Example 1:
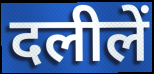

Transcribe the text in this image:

दलीलें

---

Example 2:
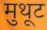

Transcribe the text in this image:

मुथूट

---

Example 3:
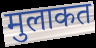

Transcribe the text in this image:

मुलाकत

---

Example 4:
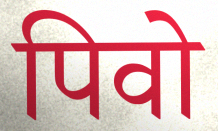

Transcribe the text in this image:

पिवो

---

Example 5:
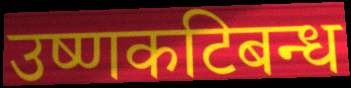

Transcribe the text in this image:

उष्णकटिबन्ध